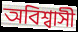
অবিশ্বাসী